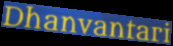
Dhanvantari